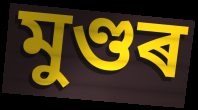
মুণ্ডৰ